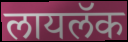
लायलॅक